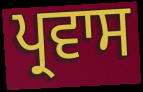
ਪ੍ਰਵਾਸ